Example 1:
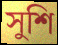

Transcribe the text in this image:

সুশি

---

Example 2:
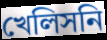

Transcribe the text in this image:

খেলিসনি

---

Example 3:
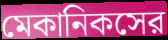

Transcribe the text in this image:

মেকানিকসের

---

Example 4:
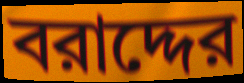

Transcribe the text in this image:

বরাদ্দের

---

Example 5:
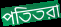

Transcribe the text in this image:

পতিতরা